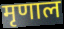
मृणाल